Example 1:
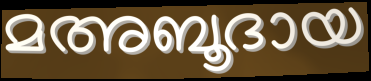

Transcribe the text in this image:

മഅബൂദായ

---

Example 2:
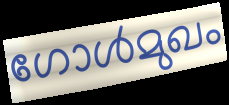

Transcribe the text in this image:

ഗോൾമുഖം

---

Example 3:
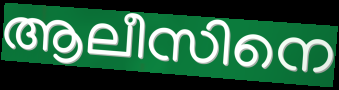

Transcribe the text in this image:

ആലീസിനെ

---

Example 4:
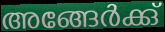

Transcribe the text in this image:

അങ്ങേർക്കു്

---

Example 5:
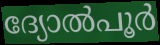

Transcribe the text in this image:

ദ്യോൽപൂർ